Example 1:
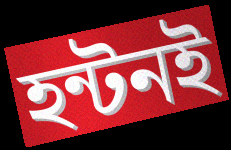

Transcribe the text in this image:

হন্টনই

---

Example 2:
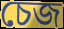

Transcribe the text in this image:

চেজ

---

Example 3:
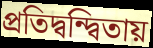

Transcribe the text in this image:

প্রতিদ্বন্দ্বিতায়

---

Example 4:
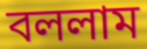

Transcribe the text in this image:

বললাম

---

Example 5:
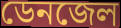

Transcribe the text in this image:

ডেনজেল